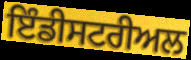
ਇੰਡੀਸਟਰੀਅਲ